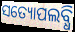
ସତ୍ୟୋପଲବ୍ଧି